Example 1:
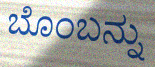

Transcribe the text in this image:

ಬೊಂಬನ್ನು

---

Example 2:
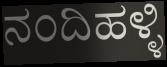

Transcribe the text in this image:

ನಂದಿಹಳ್ಳಿ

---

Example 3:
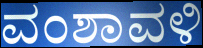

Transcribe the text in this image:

ವಂಶಾವಳಿ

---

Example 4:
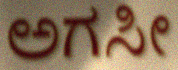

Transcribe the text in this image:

ಅಗಸೀ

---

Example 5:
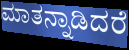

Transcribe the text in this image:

ಮಾತನ್ನಾಡಿದರೆ